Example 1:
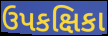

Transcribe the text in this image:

ઉપકક્ષિકા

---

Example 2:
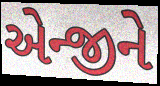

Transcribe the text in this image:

એન્જીને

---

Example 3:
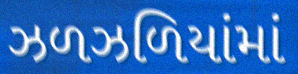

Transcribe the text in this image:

ઝળઝળિયાંમાં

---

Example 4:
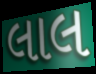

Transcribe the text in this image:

લાલ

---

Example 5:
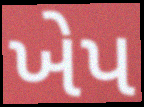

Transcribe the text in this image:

ખેપ